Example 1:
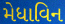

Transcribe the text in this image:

મેધાવિન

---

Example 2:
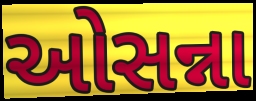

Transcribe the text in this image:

ઓસન્ના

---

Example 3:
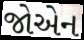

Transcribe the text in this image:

જોએન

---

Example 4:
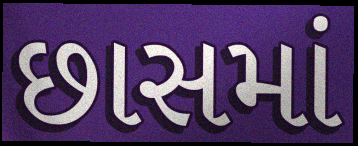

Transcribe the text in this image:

છાસમાં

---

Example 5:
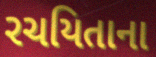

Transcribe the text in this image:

રચયિતાના